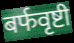
बर्फवृष्टी